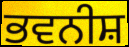
ਭਵਨੀਸ਼